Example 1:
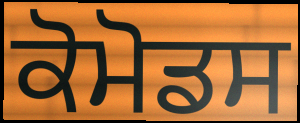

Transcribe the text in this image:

ਕੋਮੋਡਸ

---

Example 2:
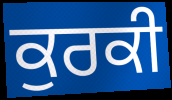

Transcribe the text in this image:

ਕੁਰਕੀ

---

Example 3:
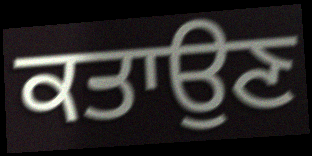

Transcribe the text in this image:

ਕਤਾਉਣ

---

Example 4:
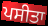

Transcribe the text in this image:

ਪਸੀਤਾ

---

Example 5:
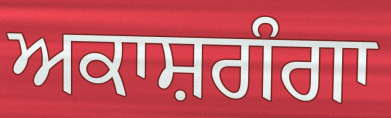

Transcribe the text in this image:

ਅਕਾਸ਼ਗੰਗਾ